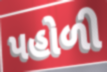
પહોળી